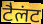
टैलंट